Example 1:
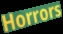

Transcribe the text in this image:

Horrors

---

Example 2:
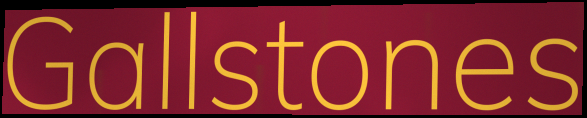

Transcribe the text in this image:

Gallstones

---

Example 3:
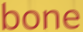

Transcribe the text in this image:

bone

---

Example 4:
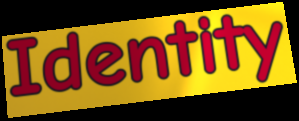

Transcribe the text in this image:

Identity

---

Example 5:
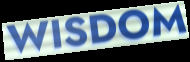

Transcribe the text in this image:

WISDOM